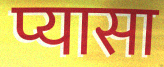
प्यासा